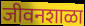
जीवनशाळा